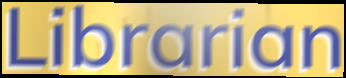
Librarian